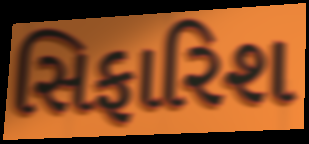
સિફારિશ